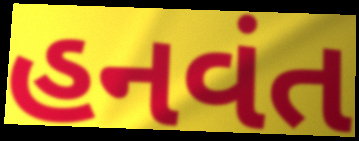
હનવંત